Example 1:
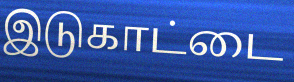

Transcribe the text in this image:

இடுகாட்டை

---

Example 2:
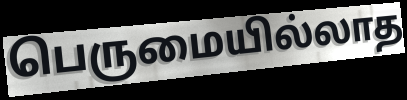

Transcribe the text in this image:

பெருமையில்லாத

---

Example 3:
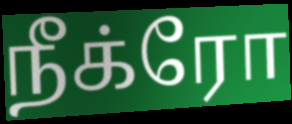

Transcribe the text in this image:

நீக்ரோ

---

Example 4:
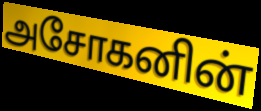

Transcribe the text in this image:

அசோகனின்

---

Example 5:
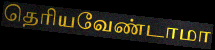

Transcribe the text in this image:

தெரியவேண்டாமா